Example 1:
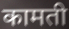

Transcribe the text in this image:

कामती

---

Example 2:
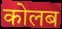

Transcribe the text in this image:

कोलब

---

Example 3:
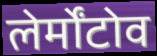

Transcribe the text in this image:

लेर्मोंटोव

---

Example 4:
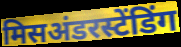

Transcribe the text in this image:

मिसअंडरस्टेंडिंग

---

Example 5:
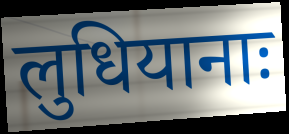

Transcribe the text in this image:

लुधियानाः